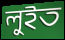
লুইত